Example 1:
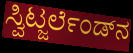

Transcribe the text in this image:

ಸ್ವಿಟ್ಜರ್ಲೆಂಡ್‌ನ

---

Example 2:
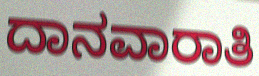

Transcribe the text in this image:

ದಾನವಾರಾತಿ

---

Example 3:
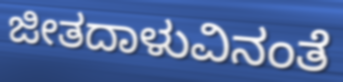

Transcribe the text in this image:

ಜೀತದಾಳುವಿನಂತೆ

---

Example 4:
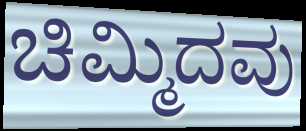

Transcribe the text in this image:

ಚಿಮ್ಮಿದವು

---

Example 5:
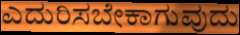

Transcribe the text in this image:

ಎದುರಿಸಬೇಕಾಗುವುದು